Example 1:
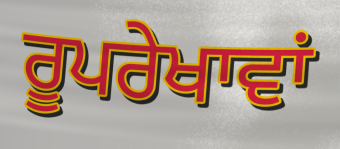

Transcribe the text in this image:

ਰੂਪਰੇਖਾਵਾਂ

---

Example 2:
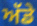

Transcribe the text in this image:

ਅੱਡੇ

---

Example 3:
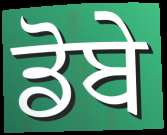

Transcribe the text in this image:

ਡੋਬੇ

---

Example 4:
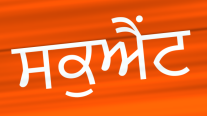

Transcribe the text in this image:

ਸਕੁਐਂਟ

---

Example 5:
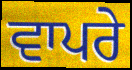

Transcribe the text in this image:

ਵਾਪਰੇ